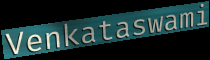
Venkataswami